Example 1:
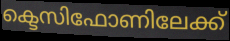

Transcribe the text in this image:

ക്ടെസിഫോണിലേക്ക്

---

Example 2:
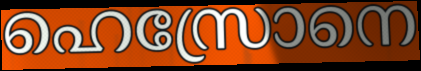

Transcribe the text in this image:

ഹെസ്രോനെ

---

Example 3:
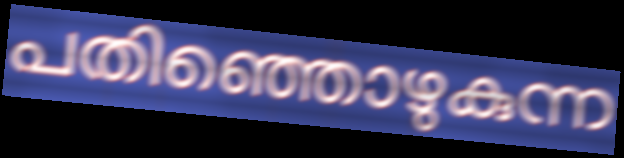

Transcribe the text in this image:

പതിഞ്ഞൊഴുകുന്ന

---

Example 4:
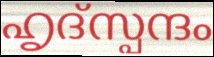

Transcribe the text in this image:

ഹൃദ്സ്പന്ദം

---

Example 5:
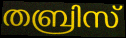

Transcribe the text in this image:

തബ്രിസ്